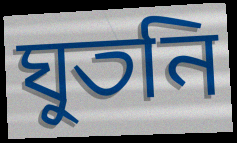
ঘুতনি